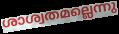
ശാശ്വതമല്ലെന്നു